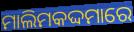
ମାଲିମକଦ୍ଦମାରେ